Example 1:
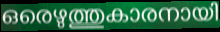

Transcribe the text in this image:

ഒരെഴുത്തുകാരനായി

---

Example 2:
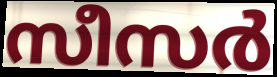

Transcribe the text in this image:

സീസർ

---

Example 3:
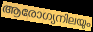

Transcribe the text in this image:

ആരോഗ്യനിലയും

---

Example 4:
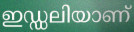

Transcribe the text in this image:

ഇഡ്ഡലിയാണ്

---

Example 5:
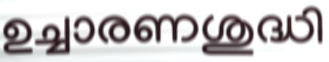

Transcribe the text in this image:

ഉച്ചാരണശുദ്ധി